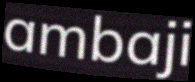
ambaji